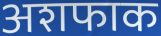
अशफाक